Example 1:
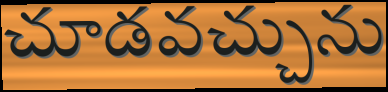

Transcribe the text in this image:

చూడవచ్చును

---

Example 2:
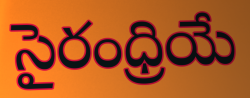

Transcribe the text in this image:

సైరంధ్రియే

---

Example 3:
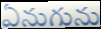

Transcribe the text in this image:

ఏనుగును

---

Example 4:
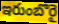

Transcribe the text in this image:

ఇరుంబొరై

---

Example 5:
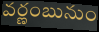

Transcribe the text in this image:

వర్ణంబునుం